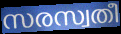
സരസ്വതീ